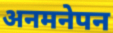
अनमनेपन